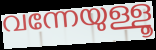
വന്നേയുള്ളൂ